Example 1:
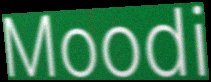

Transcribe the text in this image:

Moodi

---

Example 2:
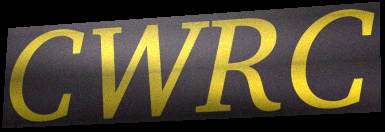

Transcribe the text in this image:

CWRC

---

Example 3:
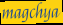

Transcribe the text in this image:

magchya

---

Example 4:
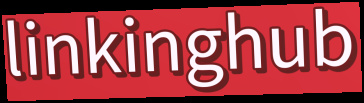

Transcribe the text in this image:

linkinghub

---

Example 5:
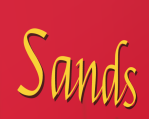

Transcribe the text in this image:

Sands